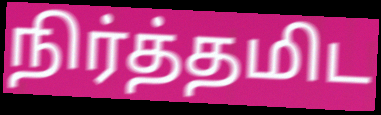
நிர்த்தமிட